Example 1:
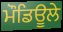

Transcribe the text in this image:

ਮੌਡਿਊਲੇ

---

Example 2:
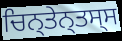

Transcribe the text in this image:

ਚਿਨ੍ਤੇਨ੍ਤਸ੍ਸ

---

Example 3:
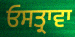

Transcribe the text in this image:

ਓਸਤ੍ਰਾਵਾ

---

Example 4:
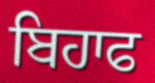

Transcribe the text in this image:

ਬਿਹਾਫ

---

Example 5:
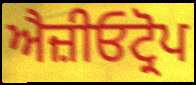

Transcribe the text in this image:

ਐਜ਼ੀਓਟ੍ਰੋਪ